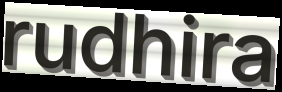
rudhira